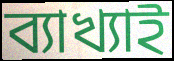
ব্যাখ্যাই